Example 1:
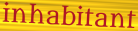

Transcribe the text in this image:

inhabitant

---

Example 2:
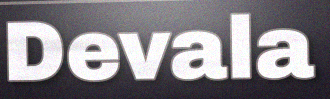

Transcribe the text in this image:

Devala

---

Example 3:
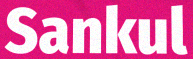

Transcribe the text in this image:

Sankul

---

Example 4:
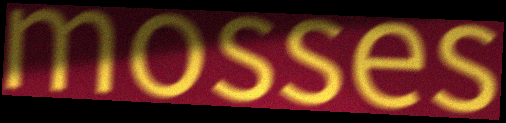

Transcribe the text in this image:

mosses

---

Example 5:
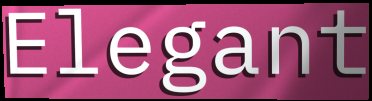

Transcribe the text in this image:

Elegant